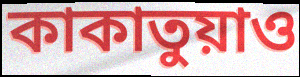
কাকাতুয়াও